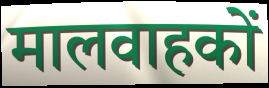
मालवाहकों